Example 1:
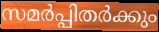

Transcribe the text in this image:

സമർപ്പിതർക്കും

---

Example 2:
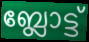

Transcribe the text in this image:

ബ്ലോട്ട്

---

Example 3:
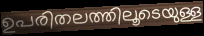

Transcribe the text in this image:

ഉപരിതലത്തിലൂടെയുള്ള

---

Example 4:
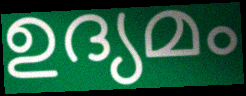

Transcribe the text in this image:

ഉദ്യമം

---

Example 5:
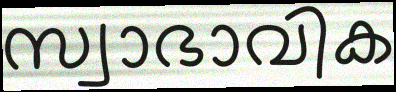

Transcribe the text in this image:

സ്വാഭാവിക